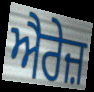
ਐਰੇਜ਼